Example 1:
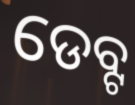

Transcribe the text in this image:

ଡେବ୍ଟ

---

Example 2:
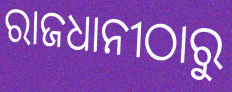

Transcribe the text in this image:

ରାଜଧାନୀଠାରୁ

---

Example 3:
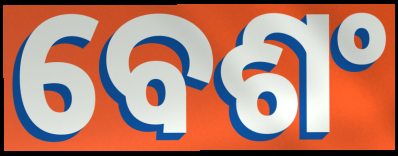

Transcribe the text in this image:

ବେଶଂ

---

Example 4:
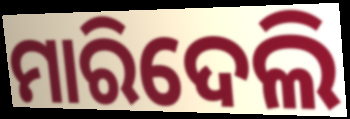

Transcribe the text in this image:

ମାରିଦେଲି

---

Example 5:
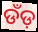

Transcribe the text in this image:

ଡଁଡ଼